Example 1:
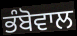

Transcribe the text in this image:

ਭੰਬੋਵਾਲ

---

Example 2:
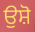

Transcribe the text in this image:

ਉਸ਼ੋ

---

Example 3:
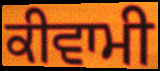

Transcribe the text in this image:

ਕੀਵਾਮੀ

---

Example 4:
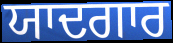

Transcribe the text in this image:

ਯਾਦਗਾਰ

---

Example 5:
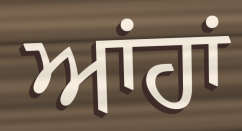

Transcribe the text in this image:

ਆਂਹਾਂ